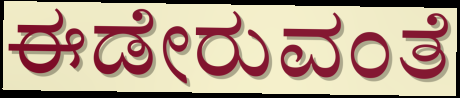
ಈಡೇರುವಂತೆ